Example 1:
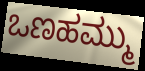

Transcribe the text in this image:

ಒಣಹಮ್ಮು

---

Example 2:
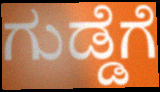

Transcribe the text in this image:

ಗುಡ್ಡೆಗೆ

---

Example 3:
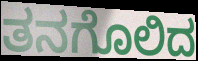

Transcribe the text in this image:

ತನಗೊಲಿದ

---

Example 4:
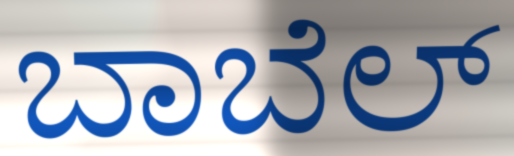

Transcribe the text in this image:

ಬಾಬೆಲ್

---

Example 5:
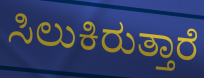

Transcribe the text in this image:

ಸಿಲುಕಿರುತ್ತಾರೆ